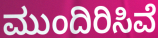
ಮುಂದಿರಿಸಿವೆ